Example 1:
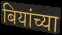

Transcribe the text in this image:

बियांच्या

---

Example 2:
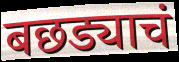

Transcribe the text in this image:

बछड्याचं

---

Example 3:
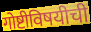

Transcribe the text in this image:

गोष्टीविषयीची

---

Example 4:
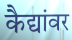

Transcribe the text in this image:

कैद्यांवर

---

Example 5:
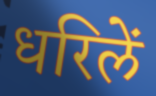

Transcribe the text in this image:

धरिलें